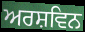
ਅਰਸ਼ਵਿਨ